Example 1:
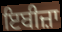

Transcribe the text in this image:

ਇਬੀਜ਼ਾ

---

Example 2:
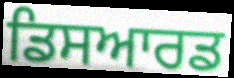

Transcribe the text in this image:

ਡਿਸਆਰਡ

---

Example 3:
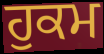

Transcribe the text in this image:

ਹੁਕਮ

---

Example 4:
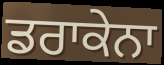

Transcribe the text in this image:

ਡਰਾਕੇਨਾ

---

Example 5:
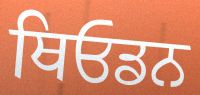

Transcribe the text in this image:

ਥਿਓਡਨ